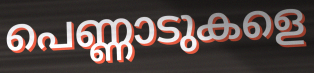
പെണ്ണാടുകളെ